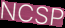
NCSP